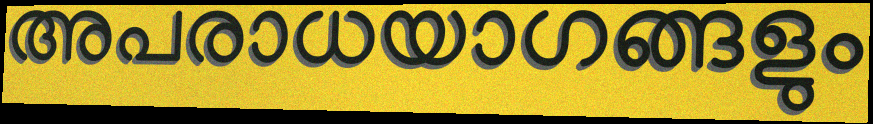
അപരാധയാഗങ്ങളും